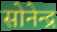
सोनेन्द्र